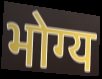
भोग्य